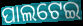
ପାଲଟେଇ